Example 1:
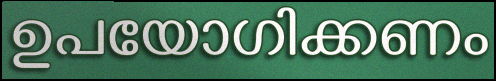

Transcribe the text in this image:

ഉപയോഗിക്കണം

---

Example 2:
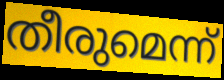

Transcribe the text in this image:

തീരുമെന്ന്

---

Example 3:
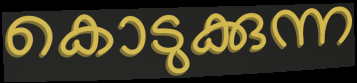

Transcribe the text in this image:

കൊടുക്കുന്ന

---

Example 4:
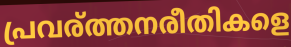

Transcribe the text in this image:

പ്രവര്ത്തനരീതികളെ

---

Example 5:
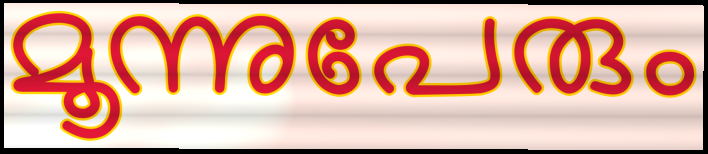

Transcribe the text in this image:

മൂന്നുപേരും